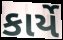
કાર્યે